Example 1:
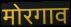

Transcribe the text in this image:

मोरगाव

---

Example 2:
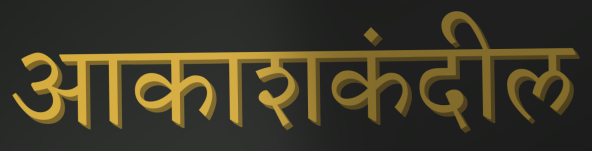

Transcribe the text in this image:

आकाशकंदील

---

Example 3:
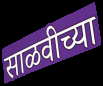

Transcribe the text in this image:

साळवीच्या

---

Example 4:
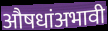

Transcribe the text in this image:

औषधांअभावी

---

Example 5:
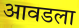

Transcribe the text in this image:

आवडला